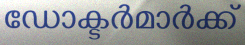
ഡോക്ടർമാർക്ക്